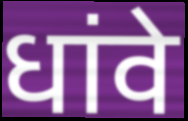
धांवे